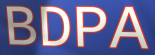
BDPA